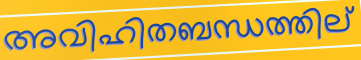
അവിഹിതബന്ധത്തില്